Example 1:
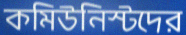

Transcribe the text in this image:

কমিউনিস্টদের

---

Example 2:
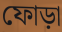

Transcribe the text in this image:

ফোড়া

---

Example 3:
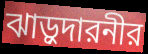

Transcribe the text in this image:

ঝাড়ুদারনীর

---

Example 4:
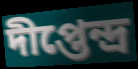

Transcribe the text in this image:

দীপ্তেন্দ্র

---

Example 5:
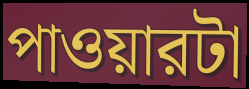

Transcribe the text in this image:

পাওয়ারটা